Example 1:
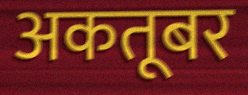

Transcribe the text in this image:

अकतूबर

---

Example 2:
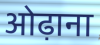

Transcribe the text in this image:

ओढ़ाना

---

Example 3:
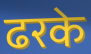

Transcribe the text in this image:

ढरके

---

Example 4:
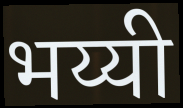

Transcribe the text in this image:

भय्यी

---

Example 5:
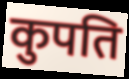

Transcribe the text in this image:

कुपति